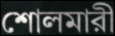
শোলমারী